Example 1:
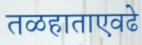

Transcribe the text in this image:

तळहाताएवढे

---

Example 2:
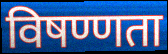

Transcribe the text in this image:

विषण्णता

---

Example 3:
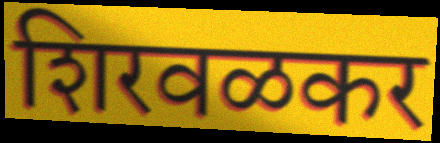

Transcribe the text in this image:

शिरवळकर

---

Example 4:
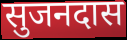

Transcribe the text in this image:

सुजनदास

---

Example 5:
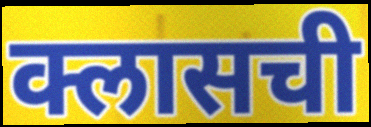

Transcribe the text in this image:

क्लासची